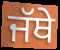
ਜੱਥੇ